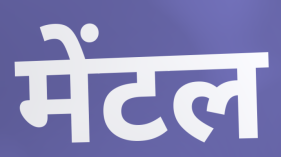
मेंटल